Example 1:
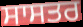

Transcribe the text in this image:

ਸਾਸਤਰ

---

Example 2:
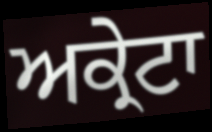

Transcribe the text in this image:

ਅਕ੍ਰੇਟਾ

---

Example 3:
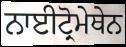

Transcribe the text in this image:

ਨਾਈਟ੍ਰੋਮੇਥੇਨ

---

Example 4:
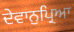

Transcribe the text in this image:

ਦੇਵਾਨੁਪ੍ਰਿਆ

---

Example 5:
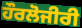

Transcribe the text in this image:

ਹੌਰਲੋਜੀਰੀ